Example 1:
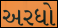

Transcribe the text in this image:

અરધો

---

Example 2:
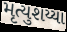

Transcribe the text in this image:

મૃત્યુશય્યા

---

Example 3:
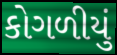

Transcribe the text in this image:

કોગળીયું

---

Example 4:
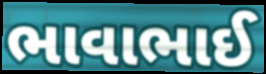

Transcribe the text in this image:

ભાવાભાઈ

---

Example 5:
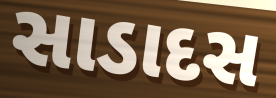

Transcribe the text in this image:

સાડાદસ